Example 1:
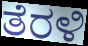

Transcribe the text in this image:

ತೆರಳಿ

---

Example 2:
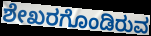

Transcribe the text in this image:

ಶೇಖರಗೊಂಡಿರುವ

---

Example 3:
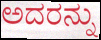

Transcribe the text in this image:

ಅದರನ್ನು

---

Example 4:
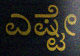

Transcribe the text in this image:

ಎಷ್ಟೇ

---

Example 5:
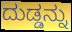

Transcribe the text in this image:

ದುಡ್ಡನ್ನು